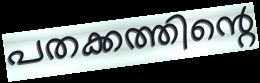
പതക്കത്തിന്റെ